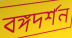
বঙ্গদর্শন